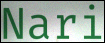
Nari